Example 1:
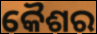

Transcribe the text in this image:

କୈଶର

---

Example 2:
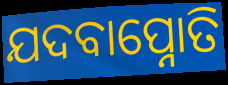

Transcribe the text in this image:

ଯଦବାପ୍ନୋତି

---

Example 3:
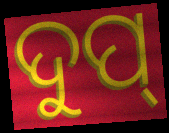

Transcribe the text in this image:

ଦୁପ୍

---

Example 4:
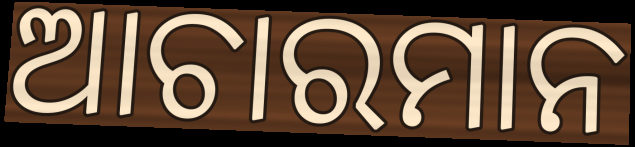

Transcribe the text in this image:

ଆଚାରମାନ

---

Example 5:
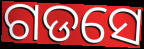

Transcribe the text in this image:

ଗଡସେ